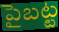
పైబట్ట